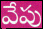
వేపు